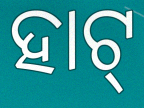
ହାଟ୍